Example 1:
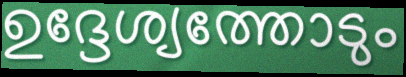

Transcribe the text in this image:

ഉദ്ദേശ്യത്തോടും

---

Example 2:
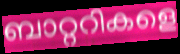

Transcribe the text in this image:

ബാറ്ററികളെ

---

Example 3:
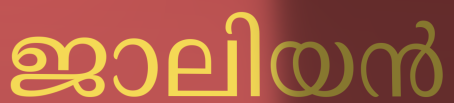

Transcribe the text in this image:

ജാലിയൻ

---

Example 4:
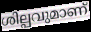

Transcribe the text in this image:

ശില്പവുമാണ്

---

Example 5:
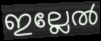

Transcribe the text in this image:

ഇല്ലേൽ